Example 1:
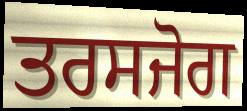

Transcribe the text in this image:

ਤਰਸਜੋਗ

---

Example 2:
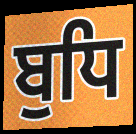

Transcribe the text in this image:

ਬੁਧਿ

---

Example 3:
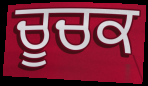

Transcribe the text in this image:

ਚੂਚਕ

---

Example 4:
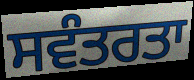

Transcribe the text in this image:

ਸਵੰਤਰਤਾ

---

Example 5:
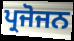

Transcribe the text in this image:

ਪ੍ਰਜੋਜਨ